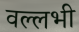
वल्लभी